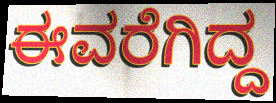
ಈವರೆಗಿದ್ದ